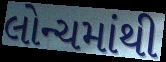
લોન્ચમાંથી